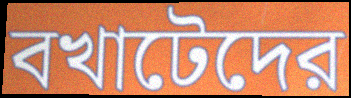
বখাটেদের